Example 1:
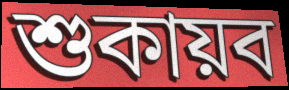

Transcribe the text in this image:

শুকায়ব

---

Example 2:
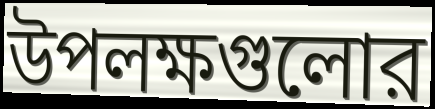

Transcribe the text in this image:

উপলক্ষগুলোর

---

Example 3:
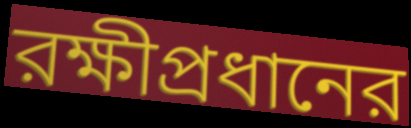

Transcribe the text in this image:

রক্ষীপ্রধানের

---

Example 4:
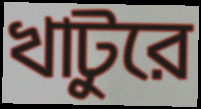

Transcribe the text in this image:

খাটুরে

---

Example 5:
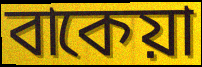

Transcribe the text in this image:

বাকেয়া